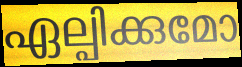
ഏല്പിക്കുമോ